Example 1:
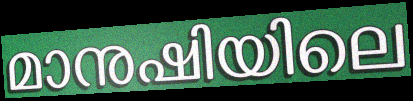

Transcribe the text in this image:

മാനുഷിയിലെ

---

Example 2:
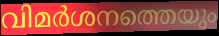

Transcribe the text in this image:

വിമർശനത്തെയും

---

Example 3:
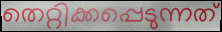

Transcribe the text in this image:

തെറ്റിക്കപ്പെടുന്നത്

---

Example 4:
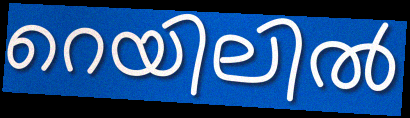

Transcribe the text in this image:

റെയിലിൽ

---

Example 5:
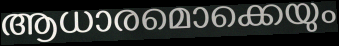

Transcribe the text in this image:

ആധാരമൊക്കെയും